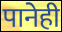
पानेही